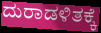
ದುರಾಡಳಿತಕ್ಕೆ